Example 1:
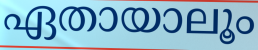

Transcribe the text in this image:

ഏതായാലൂം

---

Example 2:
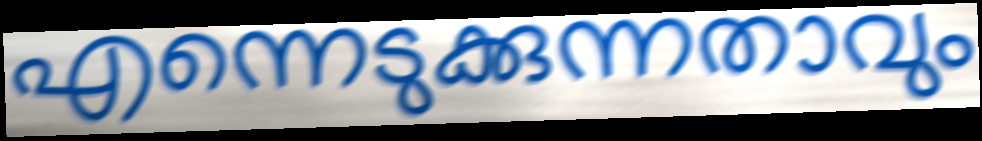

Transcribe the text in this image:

എന്നെടുക്കുന്നതാവും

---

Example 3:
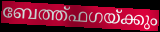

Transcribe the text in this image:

ബേത്ത്ഫഗയ്ക്കും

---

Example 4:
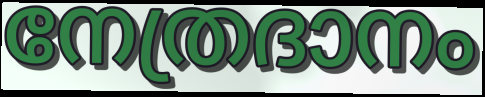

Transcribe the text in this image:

നേത്രദാനം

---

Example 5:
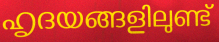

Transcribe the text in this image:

ഹൃദയങ്ങളിലുണ്ട്